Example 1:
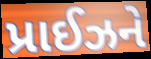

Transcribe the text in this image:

પ્રાઈઝને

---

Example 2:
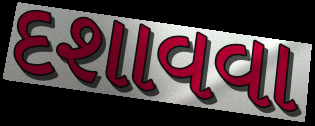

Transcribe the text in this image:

દશાવવા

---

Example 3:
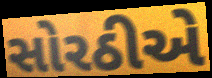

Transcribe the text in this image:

સોરઠીએ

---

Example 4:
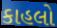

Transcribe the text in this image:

કાહલો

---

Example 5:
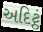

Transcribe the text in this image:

અદિટ્ઠં